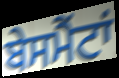
ਬੇਸਮੈਂਟਾਂ